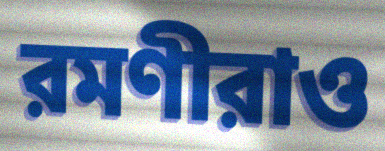
রমণীরাও